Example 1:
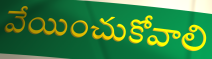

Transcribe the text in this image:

వేయించుకోవాలి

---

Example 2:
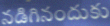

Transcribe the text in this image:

నడిగినందుకు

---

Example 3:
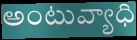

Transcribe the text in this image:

అంటువ్యాధి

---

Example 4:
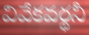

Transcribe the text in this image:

వివేకవర్థనీ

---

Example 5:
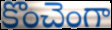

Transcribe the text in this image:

కొంచెంగా